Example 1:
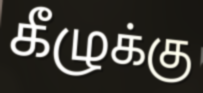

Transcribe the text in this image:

கீழுக்கு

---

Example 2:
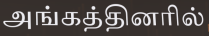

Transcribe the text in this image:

அங்கத்தினரில்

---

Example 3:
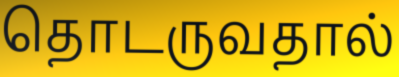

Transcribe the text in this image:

தொடருவதால்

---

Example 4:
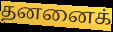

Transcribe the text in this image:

தனனைக்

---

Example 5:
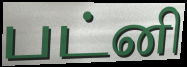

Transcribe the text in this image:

பட்னி